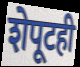
शेपूटही